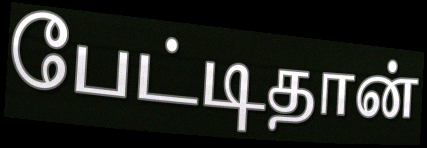
பேட்டிதான்